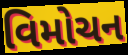
વિમોચન